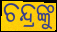
ଚନ୍ଦ୍ରଙ୍କୁ